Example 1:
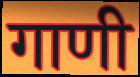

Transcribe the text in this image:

गाणी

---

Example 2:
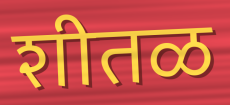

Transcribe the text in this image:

शीतळ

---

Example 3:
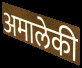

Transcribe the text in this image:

अमालेकी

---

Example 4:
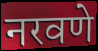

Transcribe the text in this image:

नरवणे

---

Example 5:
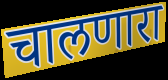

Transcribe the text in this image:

चालणारा